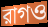
রাগও